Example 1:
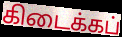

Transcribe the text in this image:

கிடைக்கப்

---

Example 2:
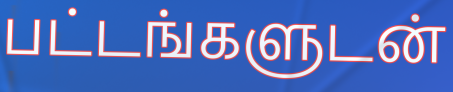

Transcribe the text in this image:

பட்டங்களுடன்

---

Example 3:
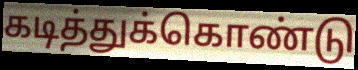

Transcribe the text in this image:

கடித்துக்கொண்டு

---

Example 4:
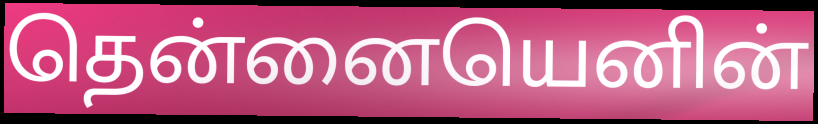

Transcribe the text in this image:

தென்னையெனின்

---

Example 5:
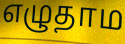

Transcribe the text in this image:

எழுதாம